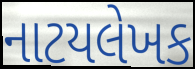
નાટયલેખક